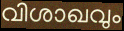
വിശാഖവും